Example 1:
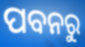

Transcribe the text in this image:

ପବନରୁ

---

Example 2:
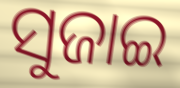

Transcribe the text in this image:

ସୁଜାଇ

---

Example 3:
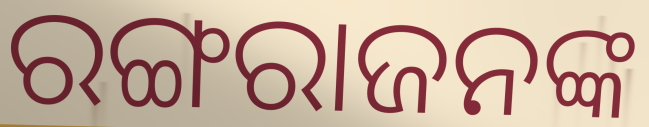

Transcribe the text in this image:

ରଙ୍ଗରାଜନଙ୍କ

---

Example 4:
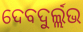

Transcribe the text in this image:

ଦେବଦୁର୍ଲ୍ଲଭ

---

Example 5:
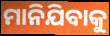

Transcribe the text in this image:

ମାନିଯିବାକୁ